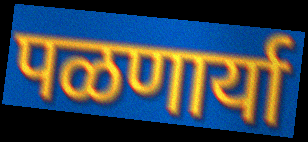
पळणार्या